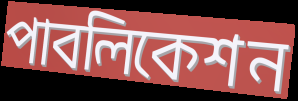
পাবলিকেশন